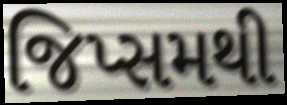
જિપ્સમથી